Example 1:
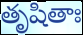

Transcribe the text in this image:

తృషితాః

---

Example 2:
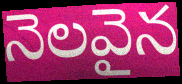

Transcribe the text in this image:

నెలవైన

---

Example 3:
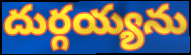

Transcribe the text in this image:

దుర్గయ్యను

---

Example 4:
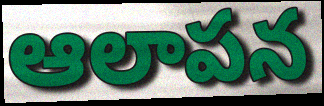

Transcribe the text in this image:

ఆలాపన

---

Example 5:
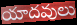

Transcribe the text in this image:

యాదవులు